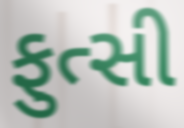
ફુત્સી